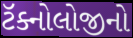
ટૅક્નોલોજીનો